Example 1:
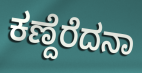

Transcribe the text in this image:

ಕಣ್ದೆರೆದನಾ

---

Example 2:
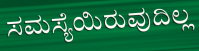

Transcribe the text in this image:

ಸಮಸ್ಯೆಯಿರುವುದಿಲ್ಲ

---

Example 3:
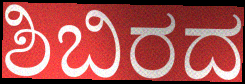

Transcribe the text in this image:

ಶಿಬಿರದ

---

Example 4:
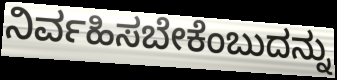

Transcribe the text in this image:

ನಿರ್ವಹಿಸಬೇಕೆಂಬುದನ್ನು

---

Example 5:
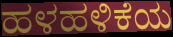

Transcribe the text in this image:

ಹಳಹಳಿಕೆಯ